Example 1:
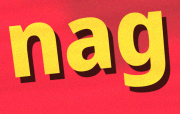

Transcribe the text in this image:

nag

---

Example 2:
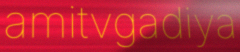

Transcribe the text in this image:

amitvgadiya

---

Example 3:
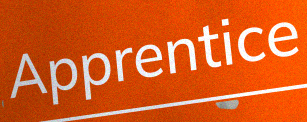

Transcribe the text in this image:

Apprentice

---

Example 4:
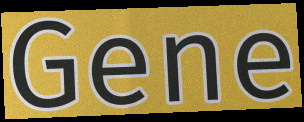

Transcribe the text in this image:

Gene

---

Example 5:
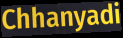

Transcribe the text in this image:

Chhanyadi